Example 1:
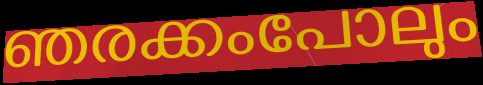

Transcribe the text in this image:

ഞരക്കംപോലും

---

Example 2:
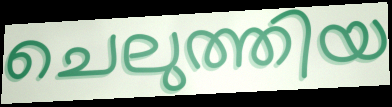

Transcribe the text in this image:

ചെലുത്തിയ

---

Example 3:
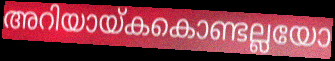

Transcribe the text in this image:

അറിയായ്കകൊണ്ടല്ലയോ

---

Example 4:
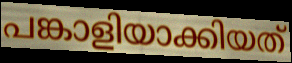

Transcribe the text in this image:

പങ്കാളിയാക്കിയത്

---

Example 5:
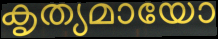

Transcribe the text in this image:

കൃത്യമായോ